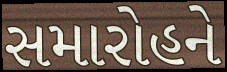
સમારોહને